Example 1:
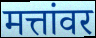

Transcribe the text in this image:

मत्तांवर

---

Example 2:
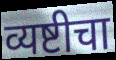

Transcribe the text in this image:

व्यष्टीचा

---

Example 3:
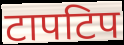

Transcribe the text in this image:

टापटिप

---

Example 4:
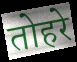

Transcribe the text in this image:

तोहरे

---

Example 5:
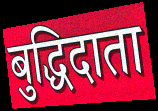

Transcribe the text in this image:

बुद्धिदाता